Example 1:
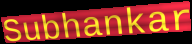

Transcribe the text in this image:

Subhankar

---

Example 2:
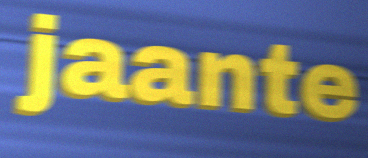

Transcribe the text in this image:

jaante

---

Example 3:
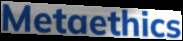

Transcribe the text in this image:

Metaethics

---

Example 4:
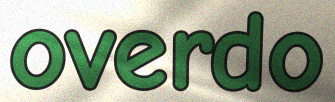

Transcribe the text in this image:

overdo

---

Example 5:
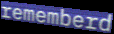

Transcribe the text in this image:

rememberd